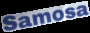
Samosa